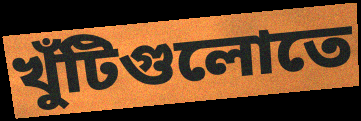
খুঁটিগুলোতে